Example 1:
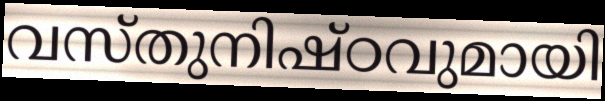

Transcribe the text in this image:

വസ്തുനിഷ്ഠവുമായി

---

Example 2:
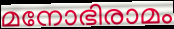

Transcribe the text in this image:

മനോഭിരാമം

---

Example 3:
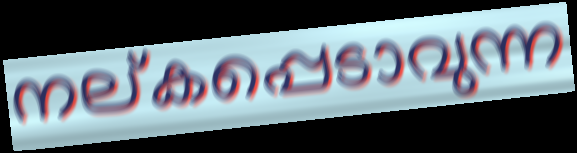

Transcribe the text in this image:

നല്കപ്പെടാവുന്ന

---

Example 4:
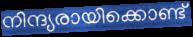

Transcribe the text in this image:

നിന്ദ്യരായിക്കൊണ്ട്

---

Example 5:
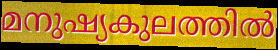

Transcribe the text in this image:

മനുഷ്യകുലത്തിൽ